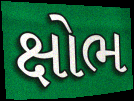
ક્ષોભ